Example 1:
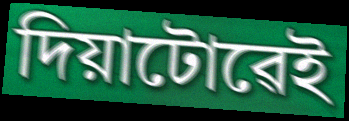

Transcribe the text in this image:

দিয়াটোৱেই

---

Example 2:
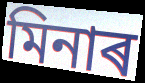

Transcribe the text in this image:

মিনাৰ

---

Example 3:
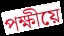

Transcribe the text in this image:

পক্ষীয়ে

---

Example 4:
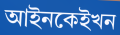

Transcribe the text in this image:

আইনকেইখন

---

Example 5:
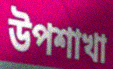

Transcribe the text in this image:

উপশাখা